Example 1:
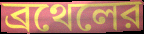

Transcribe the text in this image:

ব্রথেলের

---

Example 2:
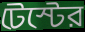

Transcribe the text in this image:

টেস্টের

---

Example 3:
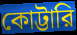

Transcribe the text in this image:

কোট্টারি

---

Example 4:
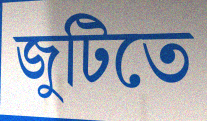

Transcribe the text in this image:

জুটিতে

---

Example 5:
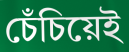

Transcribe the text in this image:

চেঁচিয়েই